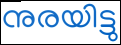
നുരയിട്ടു